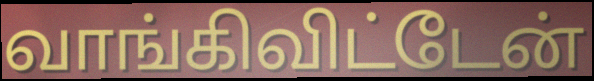
வாங்கிவிட்டேன்